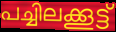
പച്ചിലക്കൂട്ട്